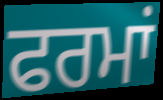
ਫਰਮਾਂ